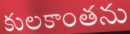
కులకాంతను